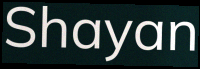
Shayan